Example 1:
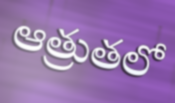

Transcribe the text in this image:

ఆత్రుతలో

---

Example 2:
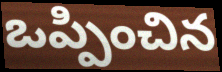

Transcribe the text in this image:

ఒప్పించిన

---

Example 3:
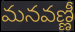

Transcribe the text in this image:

మనవణ్ణీ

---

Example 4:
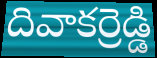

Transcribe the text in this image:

దివాకర్రెడ్డి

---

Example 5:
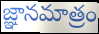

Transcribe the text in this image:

జ్ఞానమాత్రం